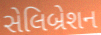
સેલિબ્રેશન